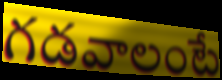
గడవాలంటే